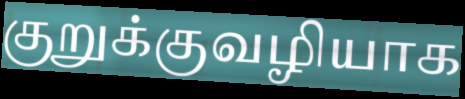
குறுக்குவழியாக